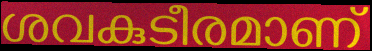
ശവകുടീരമാണ്